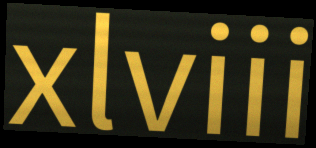
xlviii